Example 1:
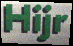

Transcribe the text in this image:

Hijr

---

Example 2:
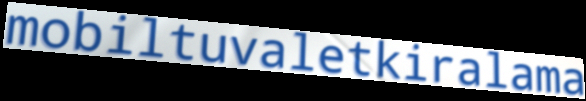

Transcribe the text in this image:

mobiltuvaletkiralama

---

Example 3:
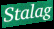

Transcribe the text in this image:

Stalag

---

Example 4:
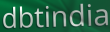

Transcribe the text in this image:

dbtindia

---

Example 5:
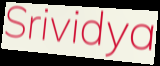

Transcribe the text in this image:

Srividya